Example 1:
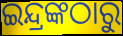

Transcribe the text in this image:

ଇନ୍ଦ୍ରଙ୍କଠାରୁ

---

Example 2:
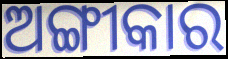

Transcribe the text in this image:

ଅଙ୍ଗୀକାର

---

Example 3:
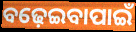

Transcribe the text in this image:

ବଢ଼େଇବାପାଇଁ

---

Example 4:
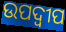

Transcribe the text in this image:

ଉପଦ୍ବୀପ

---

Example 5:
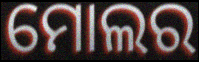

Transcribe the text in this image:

ମୋଲର